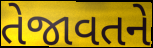
તેજાવતને